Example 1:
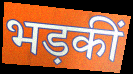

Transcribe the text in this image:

भड़कीं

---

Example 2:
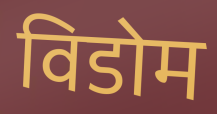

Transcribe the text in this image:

विडोम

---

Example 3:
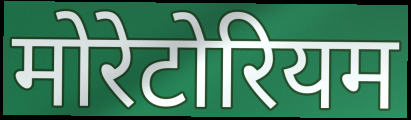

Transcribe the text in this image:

मोरेटोरियम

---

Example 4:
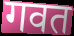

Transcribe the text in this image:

गवत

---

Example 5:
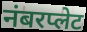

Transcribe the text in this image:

नंबरप्लेट